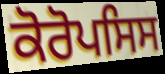
ਕੋਰੋਪਸਿਸ